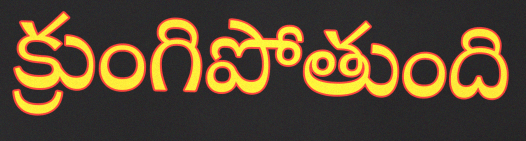
క్రుంగిపోతుంది